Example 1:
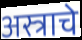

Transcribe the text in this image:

अस्त्राचे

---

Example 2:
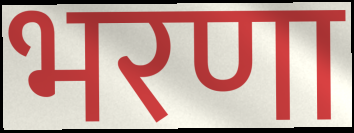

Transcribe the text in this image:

भरणा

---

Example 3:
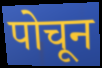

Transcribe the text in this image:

पोचून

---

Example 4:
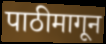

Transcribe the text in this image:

पाठीमागून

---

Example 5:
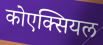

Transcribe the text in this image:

कोएक्सियल